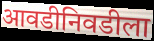
आवडीनिवडीला